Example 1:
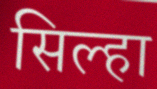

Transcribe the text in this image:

सिल्हा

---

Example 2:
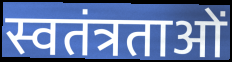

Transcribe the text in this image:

स्वतंत्रताओं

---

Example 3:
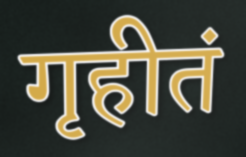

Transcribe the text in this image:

गृहीतं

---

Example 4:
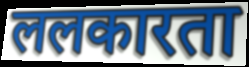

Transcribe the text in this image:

ललकारता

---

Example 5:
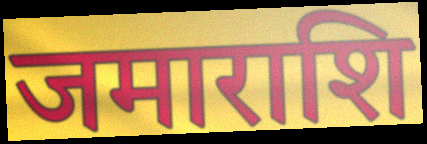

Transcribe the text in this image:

जमाराशि